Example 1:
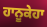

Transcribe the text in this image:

ਹਾਨੂਕੇਹਾ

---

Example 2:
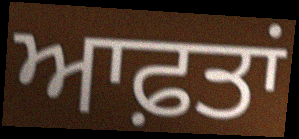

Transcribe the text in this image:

ਆਫ਼ਤਾਂ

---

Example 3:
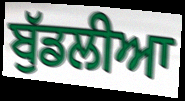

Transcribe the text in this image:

ਬੁੱਡਲੀਆ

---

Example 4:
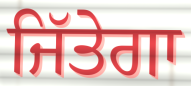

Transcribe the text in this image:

ਜਿੱਤੇਗਾ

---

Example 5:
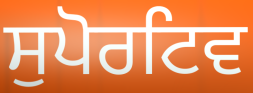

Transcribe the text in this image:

ਸੁਪੋਰਟਿਵ